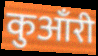
कुआँरी